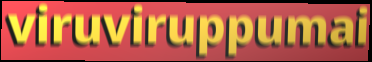
viruviruppumai